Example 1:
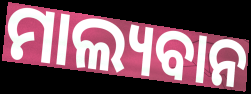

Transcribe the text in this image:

ମାଲ୍ୟବାନ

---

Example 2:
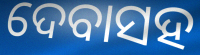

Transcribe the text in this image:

ଦେବାସହ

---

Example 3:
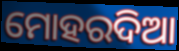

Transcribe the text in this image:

ମୋହରଦିଆ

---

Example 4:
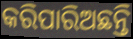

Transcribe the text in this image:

କରିପାରିଅଛନ୍ତି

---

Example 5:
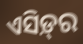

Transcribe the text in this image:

ଏସିଡ଼୍‌ର